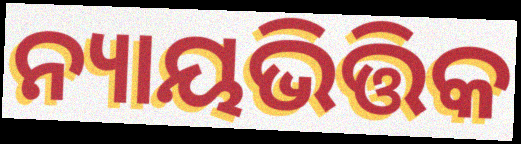
ନ୍ୟାୟଭିତ୍ତିକ